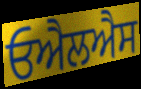
ਓਐਲਐਸ